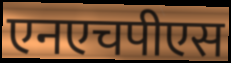
एनएचपीएस